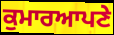
ਕੁਮਾਰਆਪਣੇ